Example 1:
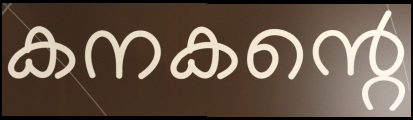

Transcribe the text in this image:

കനകന്റെ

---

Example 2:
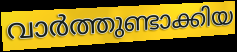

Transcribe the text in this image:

വാർത്തുണ്ടാക്കിയ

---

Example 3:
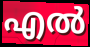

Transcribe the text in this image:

എൽ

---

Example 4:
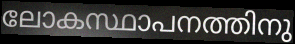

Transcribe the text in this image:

ലോകസ്ഥാപനത്തിനു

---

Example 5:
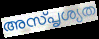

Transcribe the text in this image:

അസ്പൃശ്യത